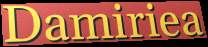
Damiriea